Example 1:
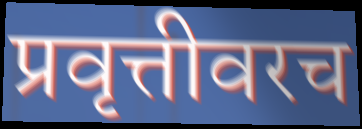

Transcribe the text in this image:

प्रवृत्तीवरच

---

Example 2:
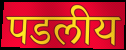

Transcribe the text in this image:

पडलीय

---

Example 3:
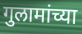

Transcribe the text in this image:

गुलामांच्या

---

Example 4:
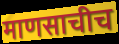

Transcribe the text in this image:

माणसाचीच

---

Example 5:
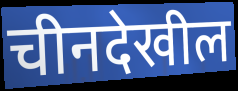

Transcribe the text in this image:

चीनदेखील